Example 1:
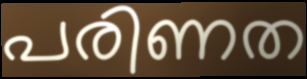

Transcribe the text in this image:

പരിണത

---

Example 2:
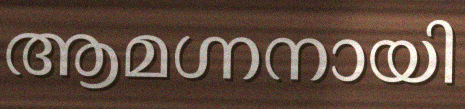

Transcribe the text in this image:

ആമഗ്നനായി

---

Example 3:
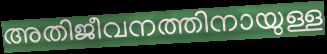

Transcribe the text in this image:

അതിജീവനത്തിനായുള്ള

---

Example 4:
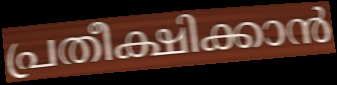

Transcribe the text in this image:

പ്രതീക്ഷിക്കാൻ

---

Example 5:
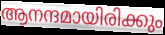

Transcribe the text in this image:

ആനന്ദമായിരിക്കും